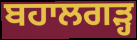
ਬਹਾਲਗੜ੍ਹ